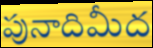
పునాదిమీద